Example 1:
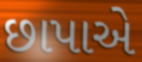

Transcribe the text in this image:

છાપાએ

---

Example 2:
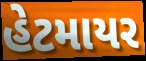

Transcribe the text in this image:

હેટમાયર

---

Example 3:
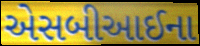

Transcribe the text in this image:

એસબીઆઈના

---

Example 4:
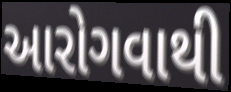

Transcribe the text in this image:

આરોગવાથી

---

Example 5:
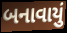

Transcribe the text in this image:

બનાવાયું